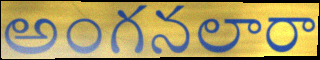
అంగనలారా